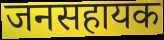
जनसहायक